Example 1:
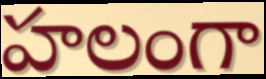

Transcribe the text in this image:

హలంగా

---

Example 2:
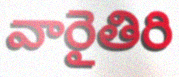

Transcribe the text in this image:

వారైతిరి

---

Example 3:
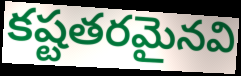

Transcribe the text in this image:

కష్టతరమైనవి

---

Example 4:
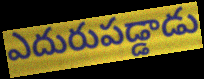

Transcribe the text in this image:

ఎదురుపడ్డాడు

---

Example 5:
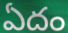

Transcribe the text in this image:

ఏదం